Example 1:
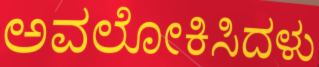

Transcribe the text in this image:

ಅವಲೋಕಿಸಿದಳು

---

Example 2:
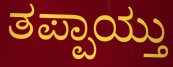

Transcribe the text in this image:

ತಪ್ಪಾಯ್ತು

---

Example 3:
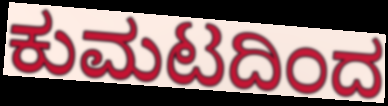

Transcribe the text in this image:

ಕುಮಟದಿಂದ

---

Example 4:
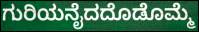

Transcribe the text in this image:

ಗುರಿಯನೈದದೊಡೊಮ್ಮೆ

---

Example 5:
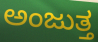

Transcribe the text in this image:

ಅಂಜುತ್ತ